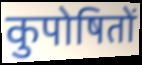
कुपोषितों